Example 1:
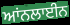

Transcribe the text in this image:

ਆਂਨਲਾਈਨ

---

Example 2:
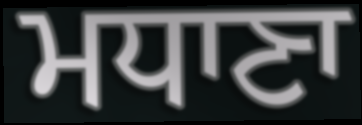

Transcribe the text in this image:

ਮਧਾਣਾ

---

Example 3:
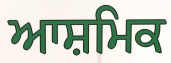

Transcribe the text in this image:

ਆਸ਼ਮਿਕ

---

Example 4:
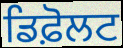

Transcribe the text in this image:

ਡਿਫ਼ੋਲਟ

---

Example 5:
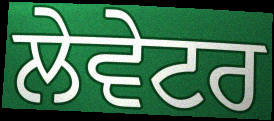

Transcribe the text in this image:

ਲੇਵੇਟਰ